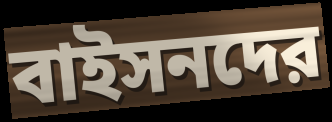
বাইসনদের